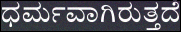
ಧರ್ಮವಾಗಿರುತ್ತದೆ